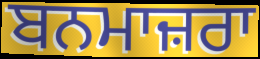
ਬਨਮਾਜ਼ਰਾ